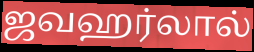
ஜவஹர்லால்